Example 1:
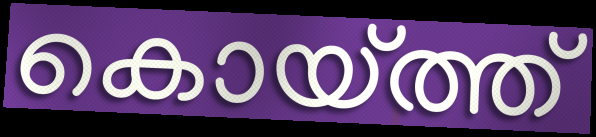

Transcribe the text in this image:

കൊയ്ത്ത്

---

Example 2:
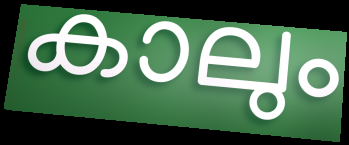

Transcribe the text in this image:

കാലും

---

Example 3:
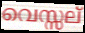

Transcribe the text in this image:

വെസ്സല്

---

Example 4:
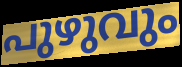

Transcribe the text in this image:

പുഴുവും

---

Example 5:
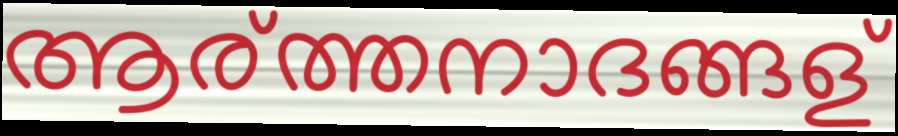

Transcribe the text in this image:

ആര്ത്തനാദങ്ങള്